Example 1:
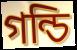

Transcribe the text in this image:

গন্ডি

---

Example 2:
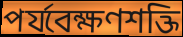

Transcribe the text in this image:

পর্যবেক্ষণশক্তি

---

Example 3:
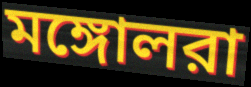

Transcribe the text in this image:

মঙ্গোলরা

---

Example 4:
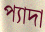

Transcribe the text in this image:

প্যাদা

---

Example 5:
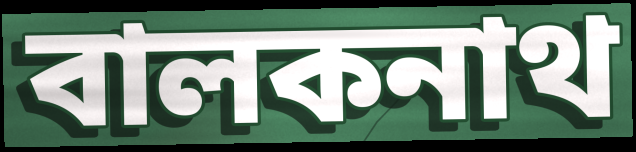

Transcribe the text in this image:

বালকনাথ